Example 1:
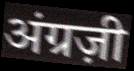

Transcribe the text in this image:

अंग्रज़ी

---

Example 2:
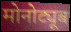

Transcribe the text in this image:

मोनोट्यूब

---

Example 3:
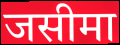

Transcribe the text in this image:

जसीमा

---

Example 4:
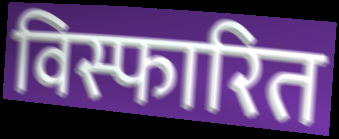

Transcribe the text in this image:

विस्फारित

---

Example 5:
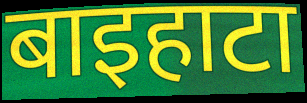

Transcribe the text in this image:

बाइहाटा